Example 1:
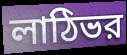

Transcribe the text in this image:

লাঠিভর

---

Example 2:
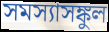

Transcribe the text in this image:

সমস্যাসঙ্কুল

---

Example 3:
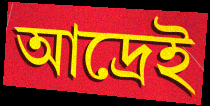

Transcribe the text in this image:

আদ্রেই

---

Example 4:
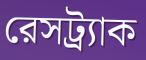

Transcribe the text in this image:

রেসট্র্যাক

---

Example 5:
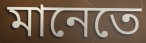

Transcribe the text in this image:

মানেতে